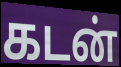
கடன்